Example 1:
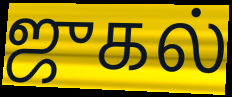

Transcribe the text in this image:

ஜுகல்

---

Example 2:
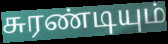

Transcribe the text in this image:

சுரண்டியும்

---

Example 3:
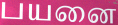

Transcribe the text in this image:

பயனை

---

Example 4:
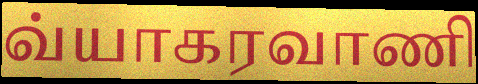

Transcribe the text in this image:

வ்யாகரவாணி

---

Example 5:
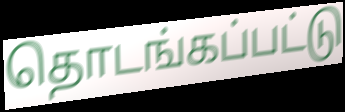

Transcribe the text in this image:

தொடங்கப்பட்டு